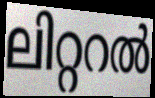
ലിറ്ററൽ